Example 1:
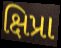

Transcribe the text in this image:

ક્ષિપ્રા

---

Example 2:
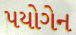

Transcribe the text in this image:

પયોગેન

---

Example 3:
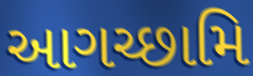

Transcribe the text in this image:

આગચ્છામિ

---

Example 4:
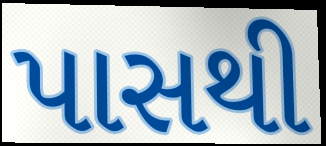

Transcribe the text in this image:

પાસથી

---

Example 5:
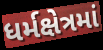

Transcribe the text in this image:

ધર્મક્ષેત્રમાં